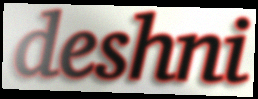
deshni